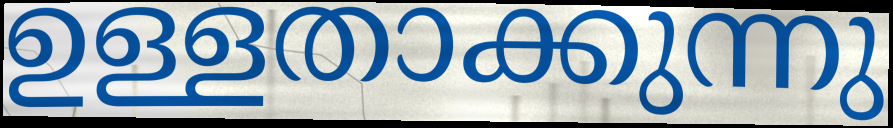
ഉള്ളതാക്കുന്നു